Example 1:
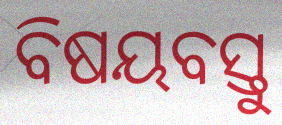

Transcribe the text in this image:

ବିଷୟବସ୍ତୁ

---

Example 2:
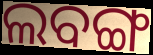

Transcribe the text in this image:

ଲବଙ୍ଗ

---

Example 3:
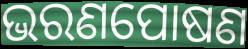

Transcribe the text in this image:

ଭରଣପୋଷଣ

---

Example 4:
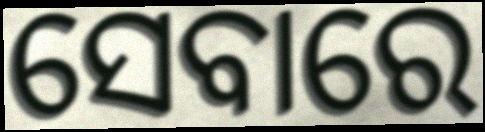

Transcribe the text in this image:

ସେବାରେ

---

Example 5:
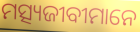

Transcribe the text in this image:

ମତ୍ସ୍ୟଜୀବୀମାନେ